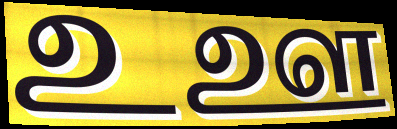
உஊ